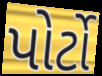
પોર્ટો